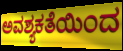
ಅವಶ್ಯಕತೆಯಿಂದ